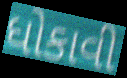
ધોકાવી